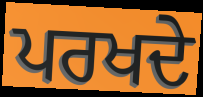
ਪਰਖਦੇ